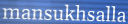
mansukhsalla